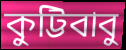
কুট্টিবাবু